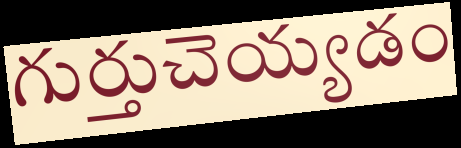
గుర్తుచెయ్యడం